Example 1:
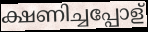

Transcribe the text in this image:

ക്ഷണിച്ചപ്പോള്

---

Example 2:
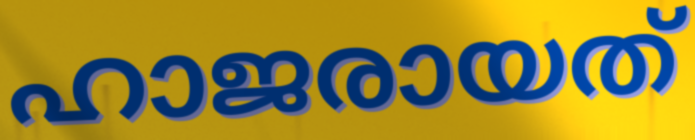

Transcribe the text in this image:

ഹാജരായത്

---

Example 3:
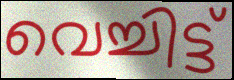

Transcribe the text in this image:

വെച്ചിട്ട്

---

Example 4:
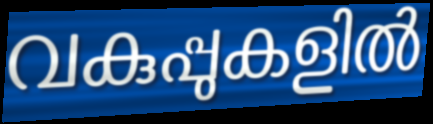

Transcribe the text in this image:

വകുപ്പുകളിൽ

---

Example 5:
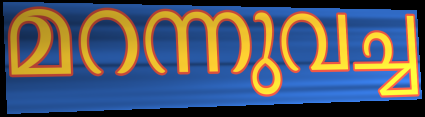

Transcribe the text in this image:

മറന്നുവച്ച